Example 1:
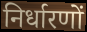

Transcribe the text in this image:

निर्धारणों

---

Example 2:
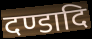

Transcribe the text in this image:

दण्डादि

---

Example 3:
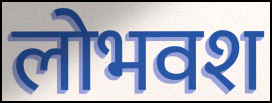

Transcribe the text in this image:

लोभवश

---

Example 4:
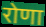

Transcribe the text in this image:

रोणा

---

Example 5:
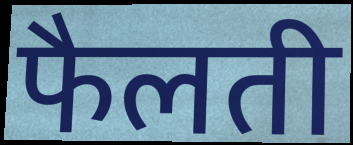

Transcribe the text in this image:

फैलती